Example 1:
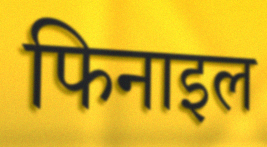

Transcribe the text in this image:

फिनाइल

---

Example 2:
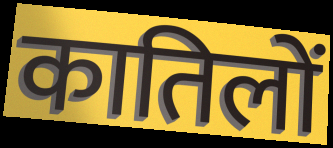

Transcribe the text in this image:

कातिलों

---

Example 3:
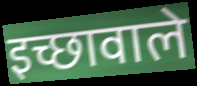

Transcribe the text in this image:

इच्छावाले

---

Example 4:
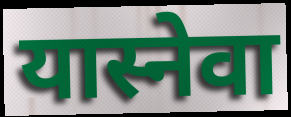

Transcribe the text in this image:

यास्नेवा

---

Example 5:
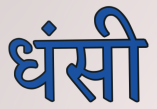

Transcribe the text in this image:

धंसी